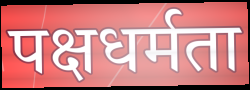
पक्षधर्मता